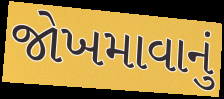
જોખમાવાનું